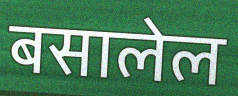
बसालेल